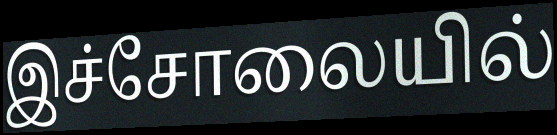
இச்சோலையில்